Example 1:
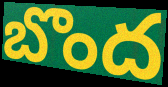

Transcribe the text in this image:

బొంద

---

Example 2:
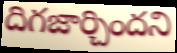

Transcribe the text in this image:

దిగజార్చిందని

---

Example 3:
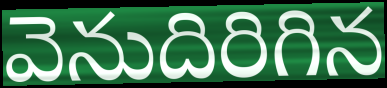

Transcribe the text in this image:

వెనుదిరిగిన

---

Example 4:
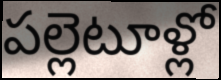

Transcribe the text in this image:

పల్లెటూళ్లో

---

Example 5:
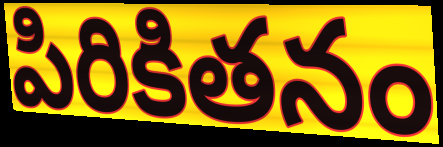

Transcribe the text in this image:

పిరికితనం